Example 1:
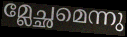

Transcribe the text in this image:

മ്ലേച്ഛമെന്നു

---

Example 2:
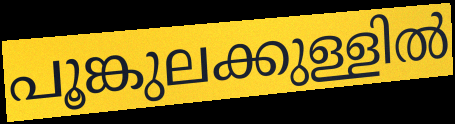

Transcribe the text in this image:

പൂങ്കുലക്കുള്ളിൽ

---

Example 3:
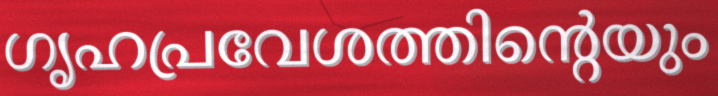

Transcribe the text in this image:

ഗൃഹപ്രവേശത്തിന്റെയും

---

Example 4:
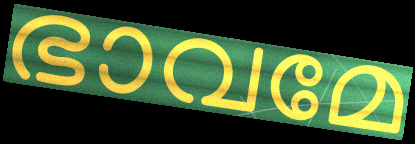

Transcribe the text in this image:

ഭാവമേ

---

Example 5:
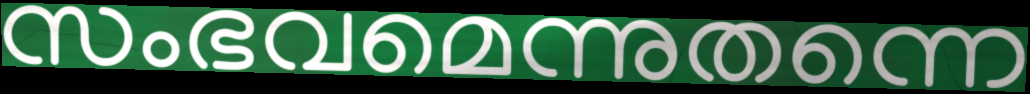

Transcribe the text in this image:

സംഭവമെന്നുതന്നെ